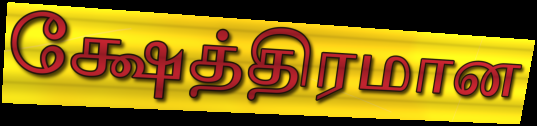
க்ஷேத்திரமான